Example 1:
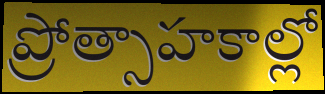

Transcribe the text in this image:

ప్రోత్సాహకాల్లో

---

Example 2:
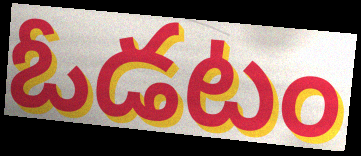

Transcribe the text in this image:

ఓడటం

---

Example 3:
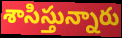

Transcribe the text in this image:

శాసిస్తున్నారు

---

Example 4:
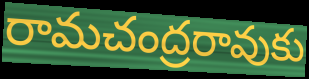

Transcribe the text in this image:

రామచంద్రరావుకు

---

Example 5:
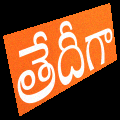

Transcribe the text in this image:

తేదీగా